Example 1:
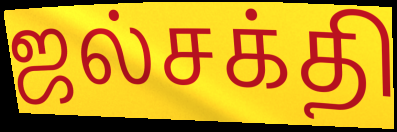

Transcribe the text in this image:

ஜல்சக்தி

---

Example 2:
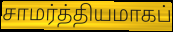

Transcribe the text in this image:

சாமர்த்தியமாகப்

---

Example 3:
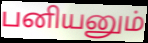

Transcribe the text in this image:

பனியனும்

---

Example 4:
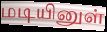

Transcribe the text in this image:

மடியினுள்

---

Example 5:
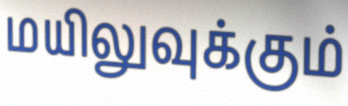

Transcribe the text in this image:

மயிலுவுக்கும்